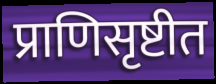
प्राणिसृष्टीत